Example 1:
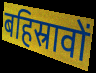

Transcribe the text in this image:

बहिस्रावों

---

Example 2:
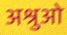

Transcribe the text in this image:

अश्रुओ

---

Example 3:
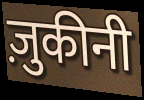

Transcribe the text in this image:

ज़ुकीनी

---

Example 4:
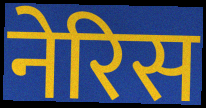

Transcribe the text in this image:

नेरिस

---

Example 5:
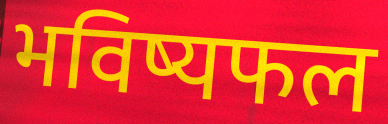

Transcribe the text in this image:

भविष्यफल